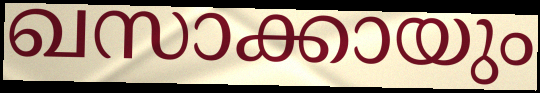
ഖസാക്കായും